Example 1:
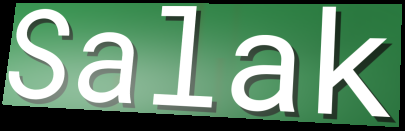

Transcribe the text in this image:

Salak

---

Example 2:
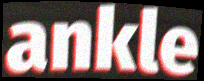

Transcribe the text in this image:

ankle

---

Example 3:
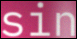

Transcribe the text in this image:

sin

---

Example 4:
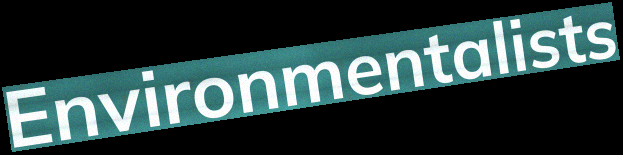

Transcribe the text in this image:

Environmentalists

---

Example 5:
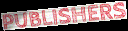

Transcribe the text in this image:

PUBLISHERS